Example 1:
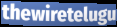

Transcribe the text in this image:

thewiretelugu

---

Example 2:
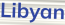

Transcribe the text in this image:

Libyan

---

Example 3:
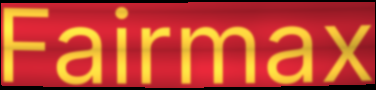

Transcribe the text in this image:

Fairmax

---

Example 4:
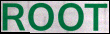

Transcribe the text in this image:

ROOT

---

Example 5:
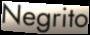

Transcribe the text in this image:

Negrito